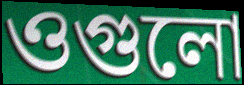
ওগুলো